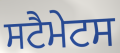
ਸਟੈਮੇਟਸ